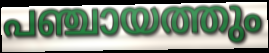
പഞ്ചായത്തും